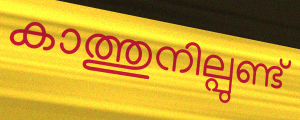
കാത്തുനില്പുണ്ട്